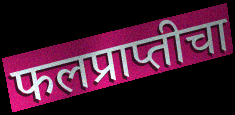
फलप्राप्तीचा